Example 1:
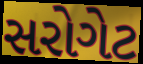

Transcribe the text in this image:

સરોગેટ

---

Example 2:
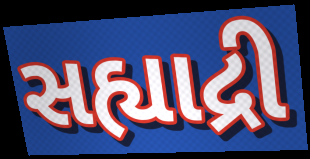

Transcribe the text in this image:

સહ્યાદ્રી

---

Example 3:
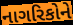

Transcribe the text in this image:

નાગરિકોને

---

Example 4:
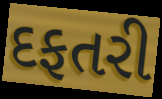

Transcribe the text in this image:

દફતરી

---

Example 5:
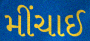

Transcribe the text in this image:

મીંચાઈ